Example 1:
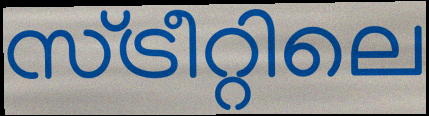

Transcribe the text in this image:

സ്ട്രീറ്റിലെ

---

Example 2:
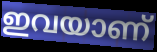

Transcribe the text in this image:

ഇവയാണ്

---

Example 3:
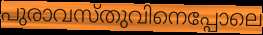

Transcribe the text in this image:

പുരാവസ്തുവിനെപ്പോലെ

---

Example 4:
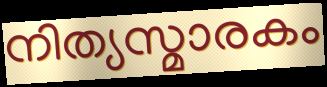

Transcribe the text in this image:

നിത്യസ്മാരകം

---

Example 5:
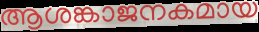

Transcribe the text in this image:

ആശങ്കാജനകമായ